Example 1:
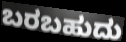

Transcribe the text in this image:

ಬರಬಹುದು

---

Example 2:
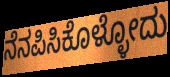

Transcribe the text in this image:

ನೆನಪಿಸಿಕೊಳ್ಳೋದು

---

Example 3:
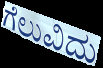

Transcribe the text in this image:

ಗೆಲುವಿದು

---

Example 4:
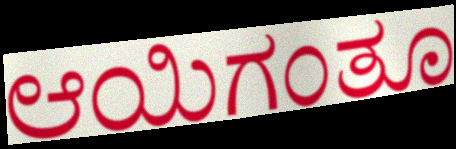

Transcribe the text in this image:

ಆಯಿಗಂತೂ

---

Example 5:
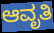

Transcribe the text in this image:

ಆವೃತಿ